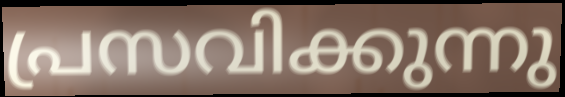
പ്രസവിക്കുന്നു